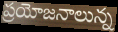
ప్రయోజనాలున్న